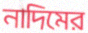
নাদিমের